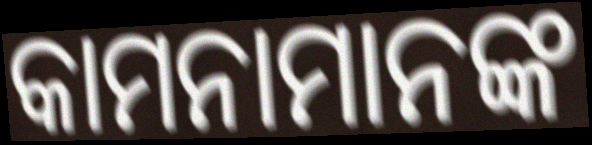
କାମନାମାନଙ୍କ